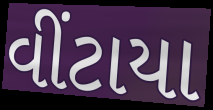
વીંટાયા